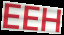
EEH